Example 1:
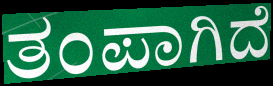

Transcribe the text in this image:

ತಂಪಾಗಿದೆ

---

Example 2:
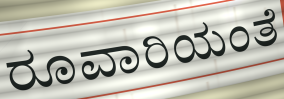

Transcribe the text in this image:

ರೂವಾರಿಯಂತೆ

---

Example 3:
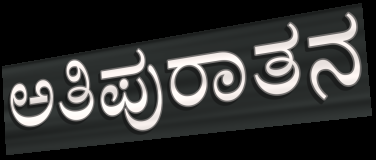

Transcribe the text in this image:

ಅತಿಪುರಾತನ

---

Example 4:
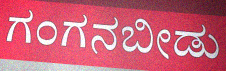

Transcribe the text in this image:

ಗಂಗನಬೀಡು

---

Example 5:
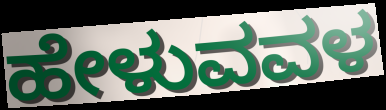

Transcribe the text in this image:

ಹೇಳುವವಳ